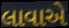
લાવાએ